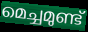
മെച്ചമുണ്ട്